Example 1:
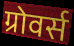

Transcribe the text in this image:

ग्रोवर्स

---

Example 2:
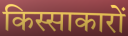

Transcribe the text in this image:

किस्साकारों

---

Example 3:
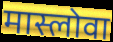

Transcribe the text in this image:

मास्लोवा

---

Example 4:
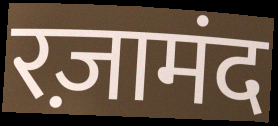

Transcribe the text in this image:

रज़ामंद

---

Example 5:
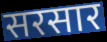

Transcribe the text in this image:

सरसार